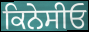
ਕਿਨੇਸੀਓ